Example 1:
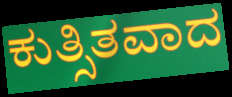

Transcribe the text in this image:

ಕುತ್ಸಿತವಾದ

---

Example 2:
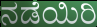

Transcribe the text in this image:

ನಡೆಯಿರಿ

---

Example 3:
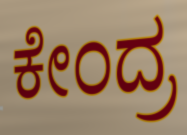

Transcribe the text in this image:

ಕೇಂದ್ರ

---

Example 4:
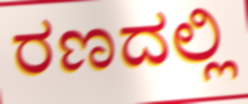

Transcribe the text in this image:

ರಣದಲ್ಲಿ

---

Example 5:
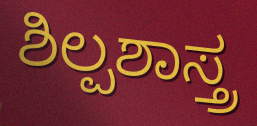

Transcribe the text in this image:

ಶಿಲ್ಪಶಾಸ್ತ್ರ